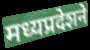
मध्यप्रदेशने